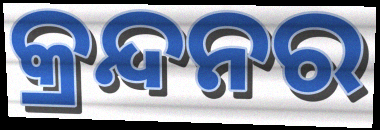
କ୍ରନ୍ଦନର